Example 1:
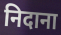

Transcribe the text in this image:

निदाना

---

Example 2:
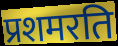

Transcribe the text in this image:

प्रशमरति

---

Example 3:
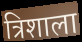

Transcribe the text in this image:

त्रिशाला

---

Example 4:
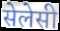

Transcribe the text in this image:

सेलेसी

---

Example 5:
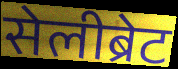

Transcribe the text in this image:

सेलीब्रेट